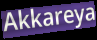
Akkareya